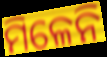
ମିଳେନି